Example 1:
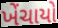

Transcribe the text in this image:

ખેંચાયો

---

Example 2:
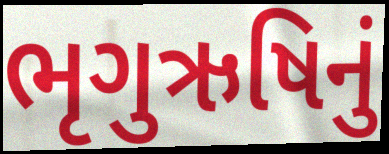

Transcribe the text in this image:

ભૃગુઋષિનું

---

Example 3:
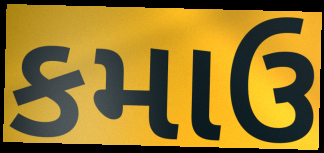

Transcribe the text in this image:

કમાઉ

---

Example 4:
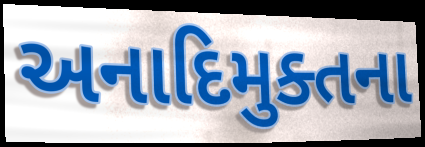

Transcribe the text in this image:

અનાદિમુક્તના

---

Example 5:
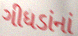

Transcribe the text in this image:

ગીધડાંનાં